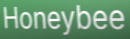
Honeybee